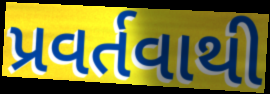
પ્રવર્તવાથી